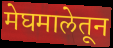
मेघमालेतून